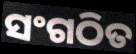
ସଂଗଠିତ